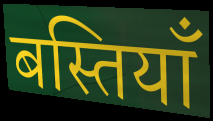
बस्तियाँ